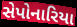
સેપોનારિયા